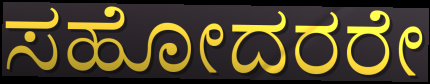
ಸಹೋದರರೇ